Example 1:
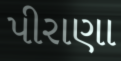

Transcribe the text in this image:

પીરાણા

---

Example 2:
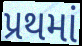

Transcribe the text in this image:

પ્રથમાં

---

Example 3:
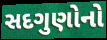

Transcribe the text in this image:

સદગુણોનો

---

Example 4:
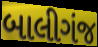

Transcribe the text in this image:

બાલીગંજ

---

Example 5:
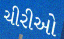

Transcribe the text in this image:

ચીરીઓ